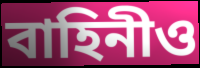
বাহিনীও